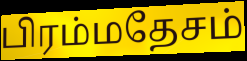
பிரம்மதேசம்